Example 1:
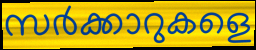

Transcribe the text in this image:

സർക്കാറുകളെ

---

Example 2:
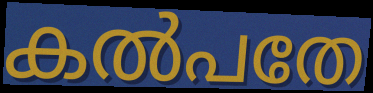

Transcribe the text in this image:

കൽപതേ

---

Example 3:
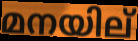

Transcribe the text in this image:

മനയില്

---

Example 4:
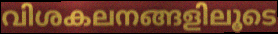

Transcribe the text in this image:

വിശകലനങ്ങളിലൂടെ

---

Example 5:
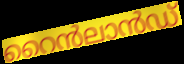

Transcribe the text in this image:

റൈൻലാൻഡ്